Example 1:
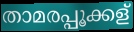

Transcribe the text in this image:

താമരപ്പൂക്കള്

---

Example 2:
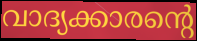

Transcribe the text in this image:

വാദ്യക്കാരന്റെ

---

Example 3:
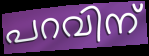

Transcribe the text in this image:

പറവിന്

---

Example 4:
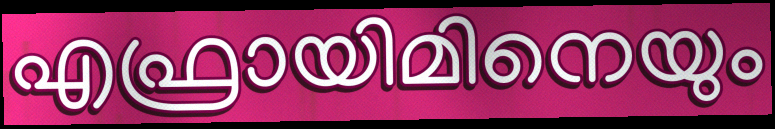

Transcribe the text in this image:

എഫ്രായിമിനെയും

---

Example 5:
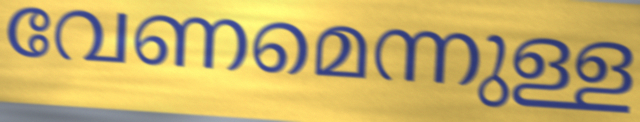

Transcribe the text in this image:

വേണമെന്നുള്ള